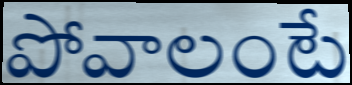
పోవాలంటే